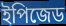
ইপিজেড